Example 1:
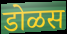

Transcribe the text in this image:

डोळस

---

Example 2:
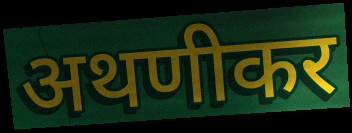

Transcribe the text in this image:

अथणीकर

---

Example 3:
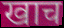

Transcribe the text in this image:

खाच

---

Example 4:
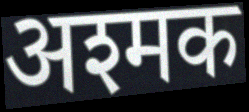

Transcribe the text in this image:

अश्मक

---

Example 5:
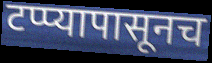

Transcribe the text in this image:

टप्प्यापासूनच